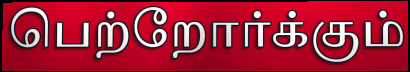
பெற்றோர்க்கும்